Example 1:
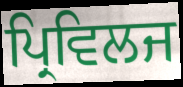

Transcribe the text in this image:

ਪ੍ਰਿਵਿਲਜ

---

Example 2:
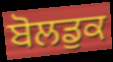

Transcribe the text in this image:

ਬੋਲਡੁਕ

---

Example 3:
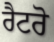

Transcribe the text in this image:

ਰੈਟਰੋ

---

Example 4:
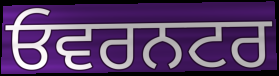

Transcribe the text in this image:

ਓਵਰਨਟਰ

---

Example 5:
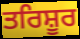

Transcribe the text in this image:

ਤਰਿਸ਼ੂਰ